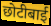
छोटीबाई